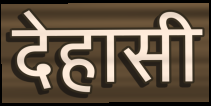
देहासी